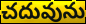
చదువును